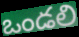
ఒండలి